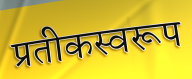
प्रतीकस्वरूप